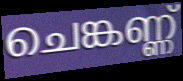
ചെങ്കണ്ണ്